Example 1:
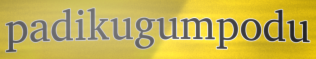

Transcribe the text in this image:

padikugumpodu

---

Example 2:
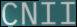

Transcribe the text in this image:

CNII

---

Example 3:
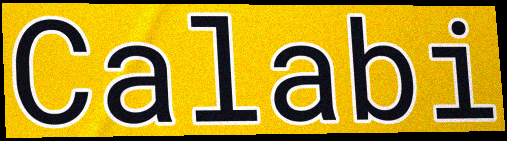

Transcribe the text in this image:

Calabi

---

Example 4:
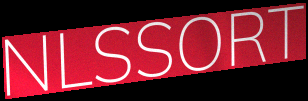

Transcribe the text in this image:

NLSSORT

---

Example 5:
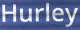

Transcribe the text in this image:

Hurley